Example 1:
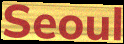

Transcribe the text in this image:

Seoul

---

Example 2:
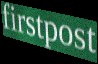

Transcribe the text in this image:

firstpost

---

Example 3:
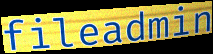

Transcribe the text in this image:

fileadmin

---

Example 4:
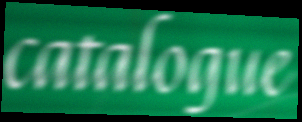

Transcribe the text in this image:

catalogue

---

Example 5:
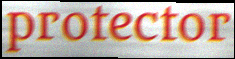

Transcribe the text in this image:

protector